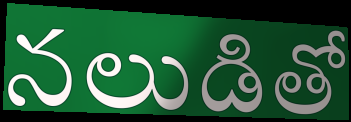
నలుడితో